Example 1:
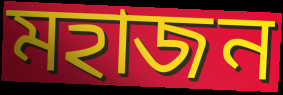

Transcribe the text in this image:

মহাজন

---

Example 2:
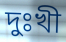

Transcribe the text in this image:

দুঃখী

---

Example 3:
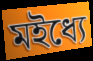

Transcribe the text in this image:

মইধ্যে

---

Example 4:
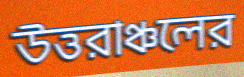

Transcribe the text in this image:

উত্তরাঞ্চলের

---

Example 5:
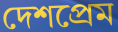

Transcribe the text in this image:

দেশপ্রেম